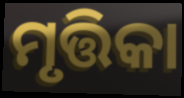
ମୃତ୍ତିକା